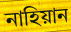
নাহিয়ান